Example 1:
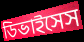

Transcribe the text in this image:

ডিভাইসেস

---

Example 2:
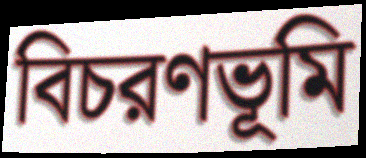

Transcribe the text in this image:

বিচরণভূমি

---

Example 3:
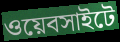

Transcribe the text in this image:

ওয়েবসাইটে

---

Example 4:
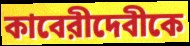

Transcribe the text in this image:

কাবেরীদেবীকে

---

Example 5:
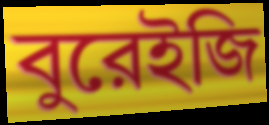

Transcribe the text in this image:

বুরেইজি